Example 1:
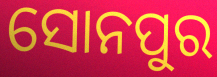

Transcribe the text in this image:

ସୋନପୁର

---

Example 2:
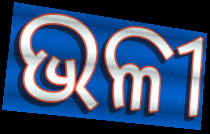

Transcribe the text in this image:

ଭଳୀ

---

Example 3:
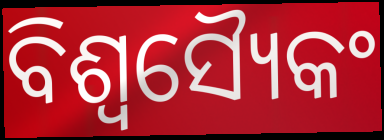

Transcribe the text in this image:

ବିଶ୍ୱସ୍ୟୈକଂ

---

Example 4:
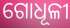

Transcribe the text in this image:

ଗୋଧୂଳୀ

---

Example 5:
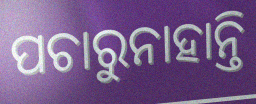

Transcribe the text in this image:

ପଚାରୁନାହାନ୍ତି